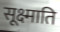
सूक्ष्माति